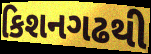
કિશનગઢથી